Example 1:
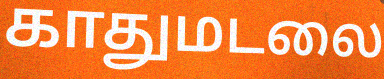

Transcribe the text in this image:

காதுமடலை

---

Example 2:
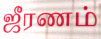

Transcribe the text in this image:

ஜீரணம்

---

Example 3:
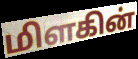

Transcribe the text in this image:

மிளகின்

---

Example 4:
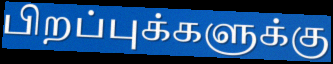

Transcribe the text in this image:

பிறப்புக்களுக்கு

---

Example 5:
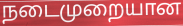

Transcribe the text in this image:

நடைமுறையான